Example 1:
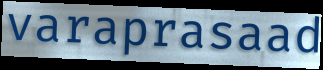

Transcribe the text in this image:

varaprasaad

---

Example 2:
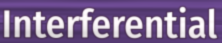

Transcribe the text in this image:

Interferential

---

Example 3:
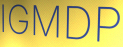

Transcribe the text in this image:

IGMDP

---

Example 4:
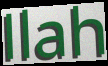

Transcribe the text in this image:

Ilah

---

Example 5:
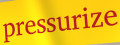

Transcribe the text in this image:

pressurize